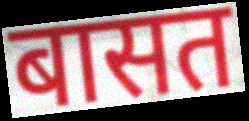
बासत